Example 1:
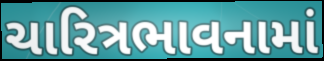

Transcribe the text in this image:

ચારિત્રભાવનામાં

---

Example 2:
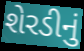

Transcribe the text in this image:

શેરડીનું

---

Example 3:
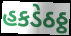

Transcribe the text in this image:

હકડેઠઠ્ઠ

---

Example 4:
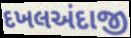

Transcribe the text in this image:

દખલઅંદાજી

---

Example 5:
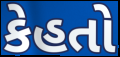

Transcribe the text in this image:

કેહતો